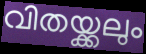
വിതയ്ക്കലും